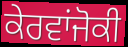
ਕੇਰਵਾਂਜੋਕੀ